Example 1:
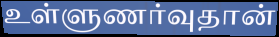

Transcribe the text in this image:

உள்ளுணர்வுதான்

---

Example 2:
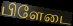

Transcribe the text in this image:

பிளேடை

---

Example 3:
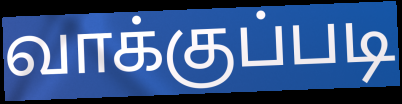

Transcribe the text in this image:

வாக்குப்படி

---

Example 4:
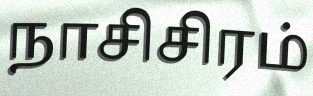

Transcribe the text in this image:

நாசிசிரம்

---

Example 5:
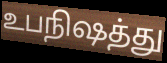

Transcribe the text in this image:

உபநிஷத்து